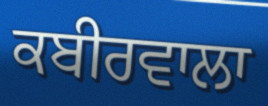
ਕਬੀਰਵਾਲਾ